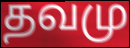
தவமு